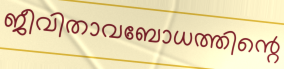
ജീവിതാവബോധത്തിന്റെ